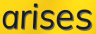
arises